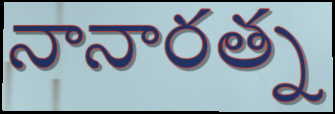
నానారత్న